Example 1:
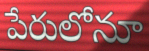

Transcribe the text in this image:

పేరులోనూ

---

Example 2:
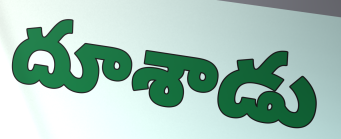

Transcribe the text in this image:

దూశాడు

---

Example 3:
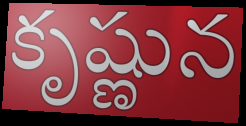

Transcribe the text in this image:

కృష్ణున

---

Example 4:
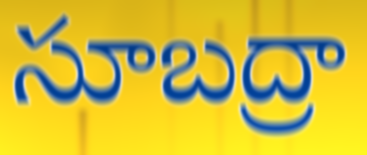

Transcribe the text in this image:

సూబద్రా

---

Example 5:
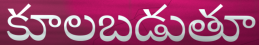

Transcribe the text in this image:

కూలబడుతూ